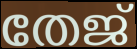
തേജ്